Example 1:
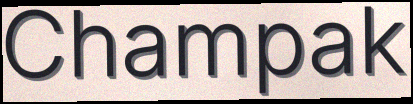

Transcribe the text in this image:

Champak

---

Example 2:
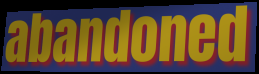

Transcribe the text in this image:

abandoned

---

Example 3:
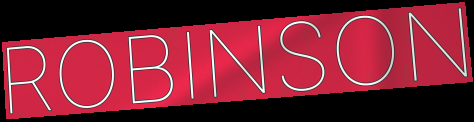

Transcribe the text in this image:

ROBINSON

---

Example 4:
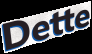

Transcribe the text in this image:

Dette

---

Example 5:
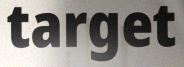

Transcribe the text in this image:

target